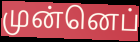
முன்னெப்